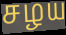
சழய